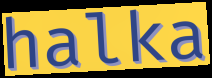
halka